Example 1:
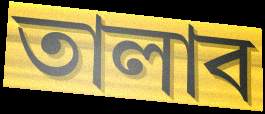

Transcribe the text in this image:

তালাব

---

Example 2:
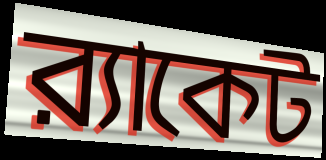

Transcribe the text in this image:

র‍্যাকেট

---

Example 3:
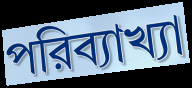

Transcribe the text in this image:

পরিব্যাখ্যা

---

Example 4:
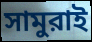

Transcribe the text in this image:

সামুরাই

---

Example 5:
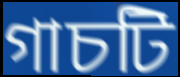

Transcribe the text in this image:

গাচটি